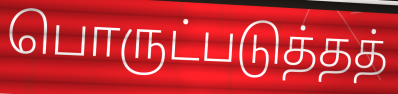
பொருட்படுத்தத்